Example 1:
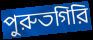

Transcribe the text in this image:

পুরুতগিরি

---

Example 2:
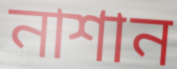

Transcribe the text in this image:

নাশান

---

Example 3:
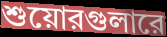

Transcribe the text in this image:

শুয়োরগুলারে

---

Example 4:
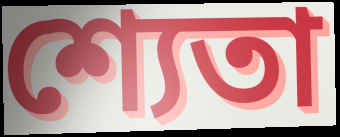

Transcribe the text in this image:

শ্যেতা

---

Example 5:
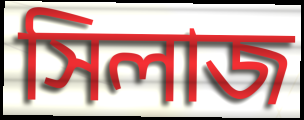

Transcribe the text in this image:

সিলাজ